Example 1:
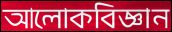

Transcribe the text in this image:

আলোকবিজ্ঞান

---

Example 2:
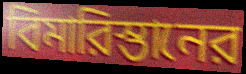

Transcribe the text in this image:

বিমারিস্তানের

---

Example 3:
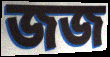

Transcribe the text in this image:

জজ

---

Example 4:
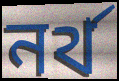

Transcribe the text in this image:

নর্থ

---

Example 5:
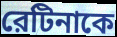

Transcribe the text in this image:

রেটিনাকে